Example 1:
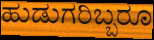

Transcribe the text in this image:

ಹುಡುಗರಿಬ್ಬರೂ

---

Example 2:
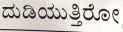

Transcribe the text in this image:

ದುಡಿಯುತ್ತಿರೋ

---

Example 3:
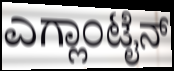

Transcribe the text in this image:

ಎಗ್ಲಾಂಟೈನ್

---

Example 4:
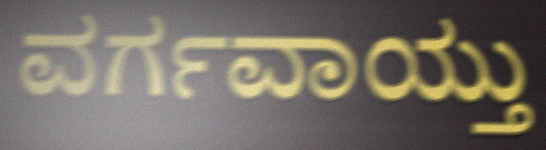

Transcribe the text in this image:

ವರ್ಗವಾಯ್ತು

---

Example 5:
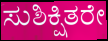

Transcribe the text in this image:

ಸುಶಿಕ್ಷಿತರೇ